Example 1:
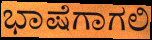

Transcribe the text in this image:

ಭಾಷೆಗಾಗಲಿ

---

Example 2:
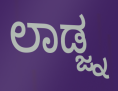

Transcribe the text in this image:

ಲಾಡ್ಜ್ನ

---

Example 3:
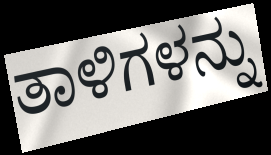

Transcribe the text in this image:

ತಾಳಿಗಳನ್ನು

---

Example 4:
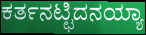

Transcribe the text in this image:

ಕರ್ತನಟ್ಟಿದನಯ್ಯಾ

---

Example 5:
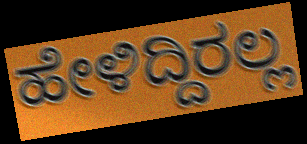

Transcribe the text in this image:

ಹೇಳಿದ್ದಿರಲ್ಲ